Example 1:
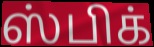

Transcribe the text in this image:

ஸ்பிக்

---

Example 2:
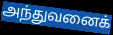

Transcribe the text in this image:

அந்துவனைக்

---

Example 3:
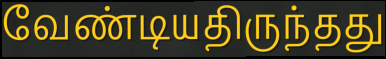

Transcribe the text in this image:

வேண்டியதிருந்தது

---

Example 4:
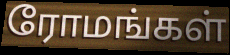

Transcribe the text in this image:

ரோமங்கள்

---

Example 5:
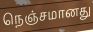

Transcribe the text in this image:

நெஞ்சமானது